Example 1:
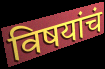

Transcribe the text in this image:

विषयांचं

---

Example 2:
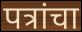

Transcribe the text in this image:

पत्रांचा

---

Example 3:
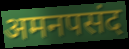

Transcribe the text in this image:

अमनपसंद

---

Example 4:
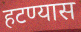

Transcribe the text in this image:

हटण्यास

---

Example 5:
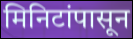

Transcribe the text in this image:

मिनिटांपासून